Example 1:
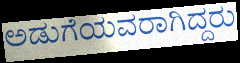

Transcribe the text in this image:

ಅಡುಗೆಯವರಾಗಿದ್ದರು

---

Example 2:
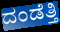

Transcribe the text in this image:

ದಂಡೆತ್ತಿ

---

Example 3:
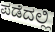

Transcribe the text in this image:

ಪಡೆದಲ್ಲಿ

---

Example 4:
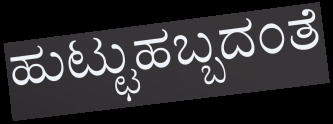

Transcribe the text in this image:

ಹುಟ್ಟುಹಬ್ಬದಂತೆ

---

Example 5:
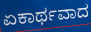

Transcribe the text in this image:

ಏಕಾರ್ಥವಾದ